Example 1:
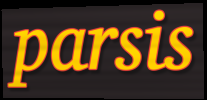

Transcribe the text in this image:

parsis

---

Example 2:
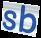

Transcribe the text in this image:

sb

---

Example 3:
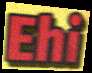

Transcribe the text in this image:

Ehi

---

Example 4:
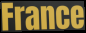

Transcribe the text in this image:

France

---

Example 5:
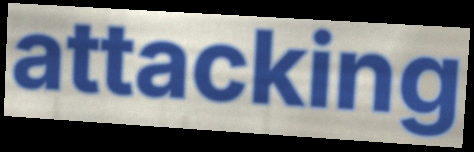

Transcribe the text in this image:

attacking